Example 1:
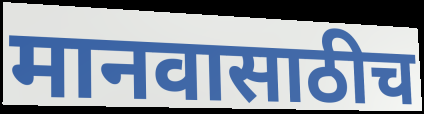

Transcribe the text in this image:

मानवासाठीच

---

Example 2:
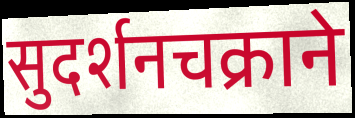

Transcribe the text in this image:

सुदर्शनचक्राने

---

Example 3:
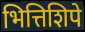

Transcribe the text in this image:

भित्तिशिपे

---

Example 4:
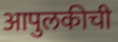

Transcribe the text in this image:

आपुलकीची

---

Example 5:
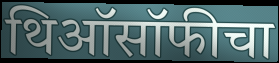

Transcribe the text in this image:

थिऑसॉफीचा